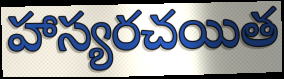
హాస్యరచయిత